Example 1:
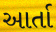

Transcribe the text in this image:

આર્તા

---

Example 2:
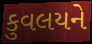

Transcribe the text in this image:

કુવલયને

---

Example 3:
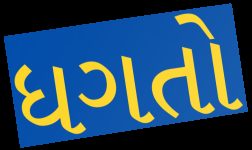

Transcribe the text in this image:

ધગતો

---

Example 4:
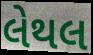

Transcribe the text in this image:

લેથલ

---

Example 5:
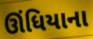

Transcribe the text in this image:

ઊંધિયાના